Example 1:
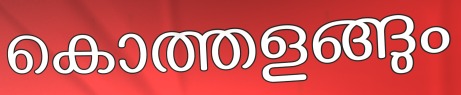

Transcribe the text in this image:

കൊത്തളങ്ങും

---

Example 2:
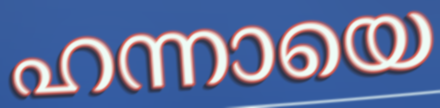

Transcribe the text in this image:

ഹന്നായെ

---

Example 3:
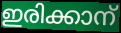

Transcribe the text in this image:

ഇരിക്കാന്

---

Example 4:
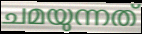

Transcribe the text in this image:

ചമയുന്നത്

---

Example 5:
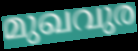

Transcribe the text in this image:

മുഖവുര